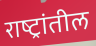
राष्ट्रांतील